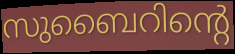
സുബൈറിന്റെ